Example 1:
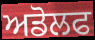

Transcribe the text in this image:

ਅਡੋਲਫ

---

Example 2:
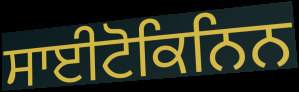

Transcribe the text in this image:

ਸਾਈਟੋਕਿਨਿਨ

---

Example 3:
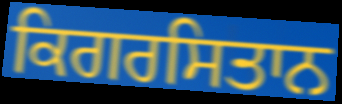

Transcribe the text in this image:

ਕਿਗਰਸਿਤਾਨ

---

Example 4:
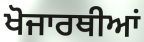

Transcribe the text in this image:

ਖੋਜਾਰਥੀਆਂ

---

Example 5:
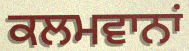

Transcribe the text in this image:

ਕਲਮਵਾਨਾਂ